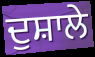
ਦੁਸ਼ਾਲੇ